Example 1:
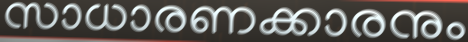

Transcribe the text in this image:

സാധാരണക്കാരനും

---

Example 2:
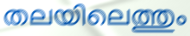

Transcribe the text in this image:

തലയിലെത്തും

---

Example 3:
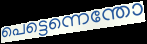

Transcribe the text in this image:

പെട്ടെന്നെന്തോ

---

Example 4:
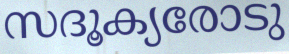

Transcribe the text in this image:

സദൂക്യരോടു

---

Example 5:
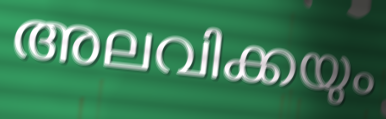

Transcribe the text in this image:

അലവിക്കയും